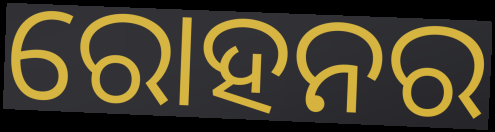
ରୋହନର